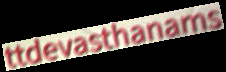
ttdevasthanams